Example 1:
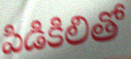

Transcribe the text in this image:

పిడికిలితో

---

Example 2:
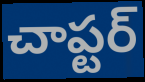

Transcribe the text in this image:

చాప్టర్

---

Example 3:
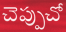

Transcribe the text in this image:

చెప్పుచో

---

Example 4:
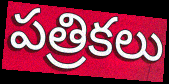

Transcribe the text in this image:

పత్రికలు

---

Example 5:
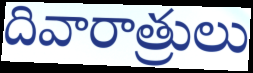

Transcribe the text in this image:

దివారాత్రులు